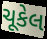
ચૂકેલ